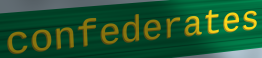
confederates